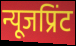
न्यूजप्रिंट